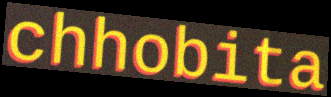
chhobita